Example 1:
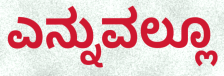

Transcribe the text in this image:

ಎನ್ನುವಲ್ಲೂ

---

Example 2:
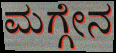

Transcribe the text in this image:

ಮಗ್ಗೇನ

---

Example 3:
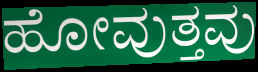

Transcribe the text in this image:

ಹೋವುತ್ತವು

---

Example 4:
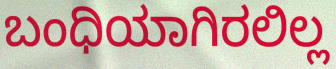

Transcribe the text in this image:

ಬಂಧಿಯಾಗಿರಲಿಲ್ಲ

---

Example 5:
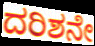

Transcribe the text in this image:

ದರಿಶನೇ